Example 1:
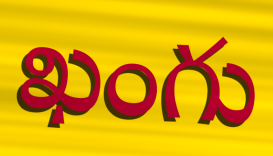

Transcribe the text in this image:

ఖంగు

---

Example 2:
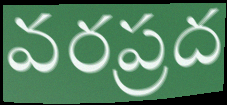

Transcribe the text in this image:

వరప్రద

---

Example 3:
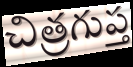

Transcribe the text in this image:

చిత్రగుప్త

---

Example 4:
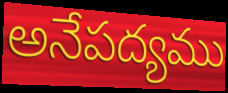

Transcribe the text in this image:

అనేపద్యము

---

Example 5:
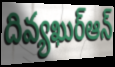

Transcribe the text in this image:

దివ్యఖుర్ఆన్